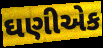
ઘણીએક